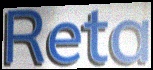
Reta